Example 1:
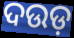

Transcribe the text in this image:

ଦଉଡ଼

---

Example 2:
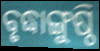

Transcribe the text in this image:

ବୃଦ୍ଧାଙ୍ଗୁଷ୍ଠି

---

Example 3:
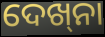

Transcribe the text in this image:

ଦେଖ୍‌ନା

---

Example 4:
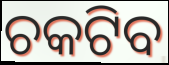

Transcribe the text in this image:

ଚକଟିବ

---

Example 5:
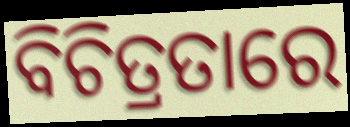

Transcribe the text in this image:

ବିଚିତ୍ରତାରେ